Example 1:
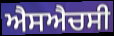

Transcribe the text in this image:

ਐਸਐਚਸੀ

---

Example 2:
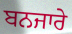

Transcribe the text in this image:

ਬਨਜਾਰੇ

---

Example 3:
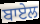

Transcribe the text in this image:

ਬਾਏਲ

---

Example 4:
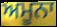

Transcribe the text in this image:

ਅਮੂਨਾ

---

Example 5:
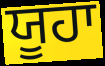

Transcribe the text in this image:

ਯੂਹਾ